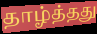
தாழ்த்தது